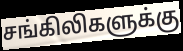
சங்கிலிகளுக்கு